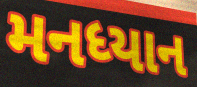
મનધ્યાન